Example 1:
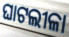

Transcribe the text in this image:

ଘାଟଲୀଳା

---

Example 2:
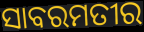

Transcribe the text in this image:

ସାବରମତୀର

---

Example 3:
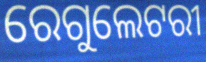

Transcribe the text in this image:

ରେଗୁଲେଟରୀ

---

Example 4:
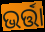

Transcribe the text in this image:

ଭର୍ତ୍ତା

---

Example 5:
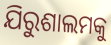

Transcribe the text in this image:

ଯିରୁଶାଲମକୁ